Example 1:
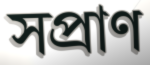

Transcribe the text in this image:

সপ্রাণ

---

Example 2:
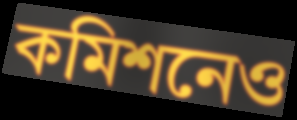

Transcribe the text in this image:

কমিশনেও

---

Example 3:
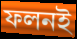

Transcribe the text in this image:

ফলনই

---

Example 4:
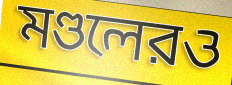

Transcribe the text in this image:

মণ্ডলেরও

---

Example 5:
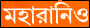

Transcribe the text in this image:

মহারানিও